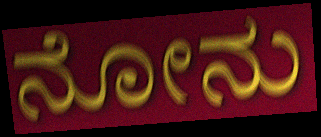
ನೋನು